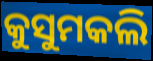
କୁସୁମକଲି